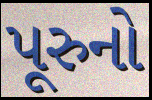
પૂરુનો